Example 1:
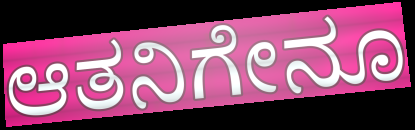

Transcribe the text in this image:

ಆತನಿಗೇನೂ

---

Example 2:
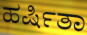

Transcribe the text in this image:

ಹರ್ಷಿತಾ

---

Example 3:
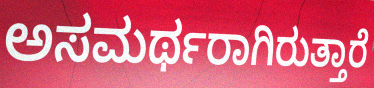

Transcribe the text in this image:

ಅಸಮರ್ಥರಾಗಿರುತ್ತಾರೆ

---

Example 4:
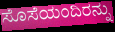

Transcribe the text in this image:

ಸೊಸೆಯಂದಿರನ್ನು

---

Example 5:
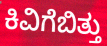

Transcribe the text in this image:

ಕಿವಿಗೆಬಿತ್ತು